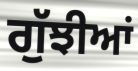
ਗੁੱਝੀਆਂ